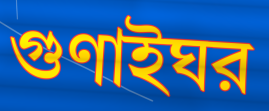
গুণাইঘর